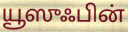
யூஸுஃபின்